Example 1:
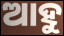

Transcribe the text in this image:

ଆହୁ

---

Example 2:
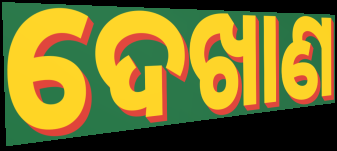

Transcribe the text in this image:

ଦେଖାଣ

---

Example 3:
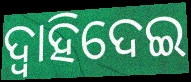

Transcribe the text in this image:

ଦ୍ବାହିଦେଇ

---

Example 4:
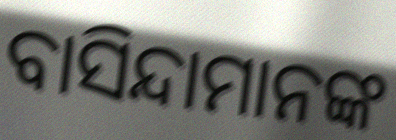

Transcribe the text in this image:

ବାସିନ୍ଦାମାନଙ୍କ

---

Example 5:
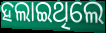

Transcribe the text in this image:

ହଲାଇଥିଲେ